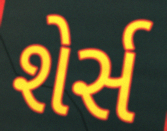
શેર્સ